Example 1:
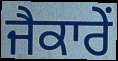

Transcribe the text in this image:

ਜੈਕਾਰੇਂ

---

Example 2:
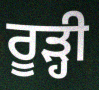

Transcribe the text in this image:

ਰੂੜ੍ਹੀ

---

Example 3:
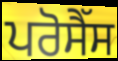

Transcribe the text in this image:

ਪਰੋਸੈੱਸ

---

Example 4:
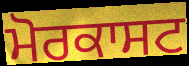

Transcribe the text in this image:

ਮੋਰਕਾਸਟ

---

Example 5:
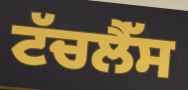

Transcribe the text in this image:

ਟੱਚਲੈੱਸ